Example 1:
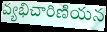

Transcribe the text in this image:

వ్యభిచారిణియన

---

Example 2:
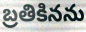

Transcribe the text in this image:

బ్రతికినను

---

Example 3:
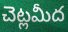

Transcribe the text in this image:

చెట్లమీద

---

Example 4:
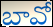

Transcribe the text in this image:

బావో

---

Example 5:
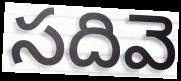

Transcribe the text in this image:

సదివె